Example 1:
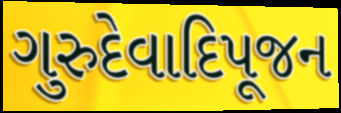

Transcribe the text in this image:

ગુરુદેવાદિપૂજન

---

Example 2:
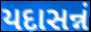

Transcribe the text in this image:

યદાસન્નં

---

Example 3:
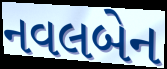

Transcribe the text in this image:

નવલબેન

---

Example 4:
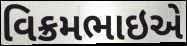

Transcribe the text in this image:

વિક્રમભાઇએ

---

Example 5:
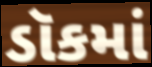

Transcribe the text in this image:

ડૉકમાં